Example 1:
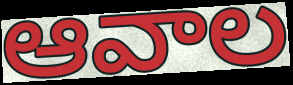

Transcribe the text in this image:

ఆవాల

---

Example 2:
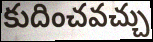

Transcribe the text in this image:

కుదించవచ్చు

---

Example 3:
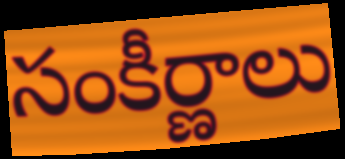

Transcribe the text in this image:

సంకీర్ణాలు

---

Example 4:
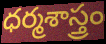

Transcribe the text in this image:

ధర్మశాస్త్రం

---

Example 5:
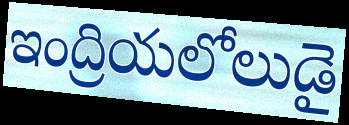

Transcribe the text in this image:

ఇంద్రియలోలుడై